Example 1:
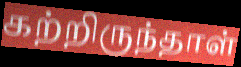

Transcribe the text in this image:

கற்றிருந்தாள்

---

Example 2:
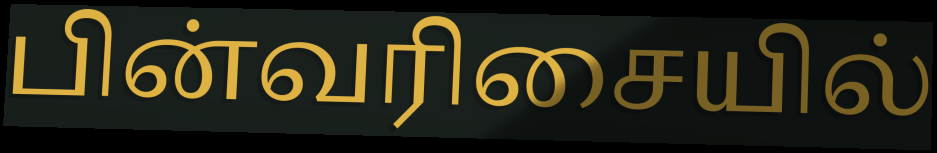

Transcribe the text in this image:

பின்வரிசையில்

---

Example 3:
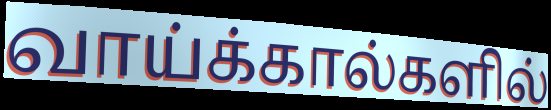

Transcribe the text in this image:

வாய்க்கால்களில்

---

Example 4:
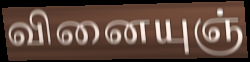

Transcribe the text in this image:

வினையுஞ்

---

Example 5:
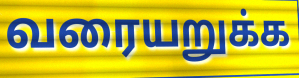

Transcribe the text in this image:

வரையறுக்க